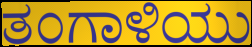
ತಂಗಾಳಿಯು